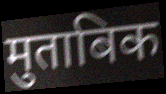
मुताबिक